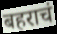
बहराचं